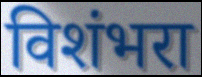
विशंभरा